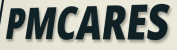
PMCARES